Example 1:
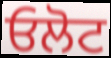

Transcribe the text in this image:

ਓਲੋਟ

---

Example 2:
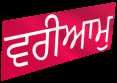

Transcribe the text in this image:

ਵਰੀਆਮੁ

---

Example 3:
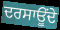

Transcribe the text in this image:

ਦਰਸਾਊਂਦੇ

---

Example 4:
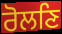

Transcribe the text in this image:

ਰੋਲਣਿ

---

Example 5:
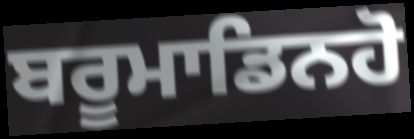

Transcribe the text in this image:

ਬਰੂਮਾਡਿਨਹੋ